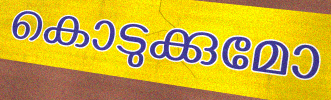
കൊടുക്കുമോ